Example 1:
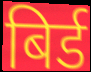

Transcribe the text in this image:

बिर्ड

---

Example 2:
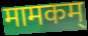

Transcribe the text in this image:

मामकम्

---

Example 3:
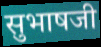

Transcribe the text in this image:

सुभाषजी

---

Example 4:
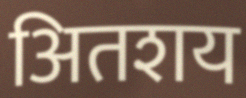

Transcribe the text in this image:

अितशय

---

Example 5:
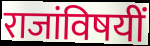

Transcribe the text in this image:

राजांविषयीं